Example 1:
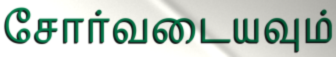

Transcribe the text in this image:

சோர்வடையவும்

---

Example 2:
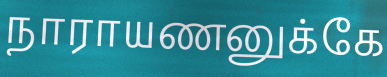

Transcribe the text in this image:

நாராயணனுக்கே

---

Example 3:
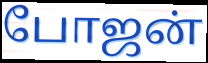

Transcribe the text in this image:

போஜன்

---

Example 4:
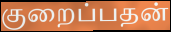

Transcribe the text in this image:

குறைப்பதன்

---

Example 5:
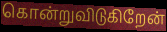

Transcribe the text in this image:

கொன்றுவிடுகிறேன்